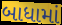
બાધામાં